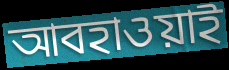
আবহাওয়াই